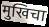
मुखिचा